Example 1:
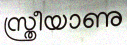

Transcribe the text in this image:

സ്ത്രീയാണു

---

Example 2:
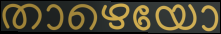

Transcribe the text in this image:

താഴെയോ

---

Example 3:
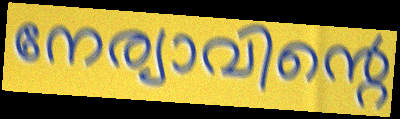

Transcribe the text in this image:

നേര്യാവിന്റെ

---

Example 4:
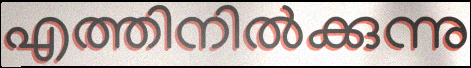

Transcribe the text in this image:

എത്തിനിൽക്കുന്നു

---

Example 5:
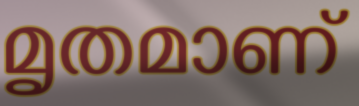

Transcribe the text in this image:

മൃതമാണ്